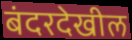
बंदरदेखील